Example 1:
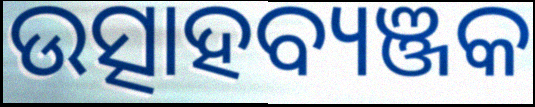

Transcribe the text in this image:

ଉତ୍ସାହବ୍ୟଞ୍ଜକ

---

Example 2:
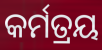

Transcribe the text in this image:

କର୍ମତ୍ରୟ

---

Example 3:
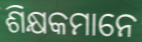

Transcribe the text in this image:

ଶିକ୍ଷକମାନେ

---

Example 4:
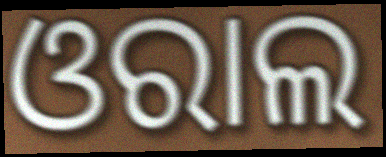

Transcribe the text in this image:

ଓରାଲ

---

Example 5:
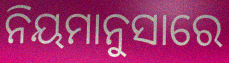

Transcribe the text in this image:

ନିୟମାନୁସାରେ